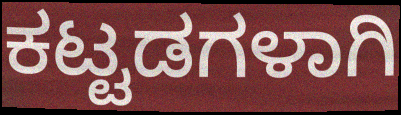
ಕಟ್ಟಡಗಳಾಗಿ